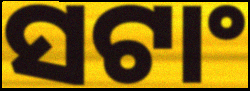
ସଟାଂ